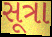
સૂત્રા